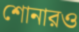
শোনারও